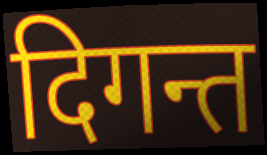
दिगन्त